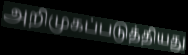
அறிமுகப்படுத்தியது